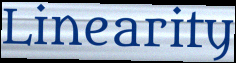
Linearity